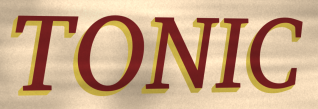
TONIC